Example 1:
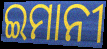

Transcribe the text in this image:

ଇମାନୀ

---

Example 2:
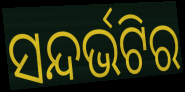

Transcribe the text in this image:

ସନ୍ଦର୍ଭଟିର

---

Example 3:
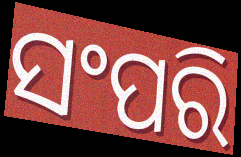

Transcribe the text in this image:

ସଂପରି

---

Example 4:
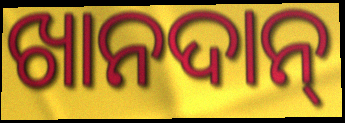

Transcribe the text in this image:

ଖାନଦାନ୍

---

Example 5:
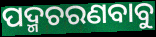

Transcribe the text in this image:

ପଦ୍ମଚରଣବାବୁ